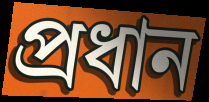
প্রধান